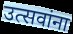
उत्सवांना